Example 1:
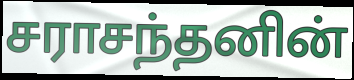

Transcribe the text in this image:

சராசந்தனின்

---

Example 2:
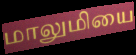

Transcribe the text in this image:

மாலுமியை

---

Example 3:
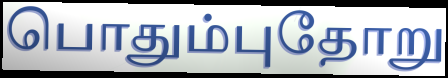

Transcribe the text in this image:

பொதும்புதோறு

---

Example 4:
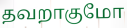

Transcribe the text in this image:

தவறாகுமோ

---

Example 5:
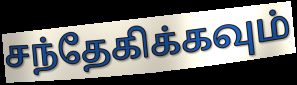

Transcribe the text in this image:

சந்தேகிக்கவும்